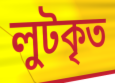
লুটকৃত